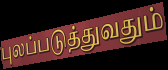
புலப்படுத்துவதும்